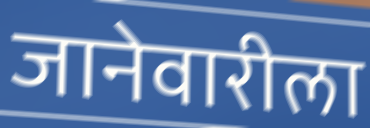
जानेवारीला